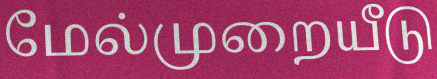
மேல்முறையீடு